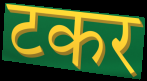
टकर